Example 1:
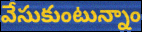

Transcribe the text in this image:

వేసుకుంటున్నాం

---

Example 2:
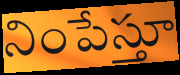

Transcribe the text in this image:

నింపేస్తూ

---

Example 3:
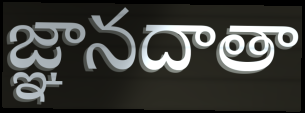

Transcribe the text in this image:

జ్ఞానదాతా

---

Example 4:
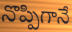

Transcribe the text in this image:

నొప్పిగానే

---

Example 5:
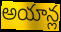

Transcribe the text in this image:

అయాన్ల